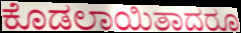
ಕೊಡಲಾಯಿತಾದರೂ